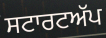
ਸਟਾਰਟਅੱਪ